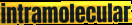
intramolecular